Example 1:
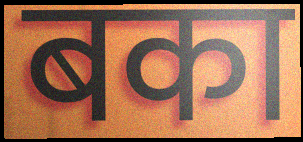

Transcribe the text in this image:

बका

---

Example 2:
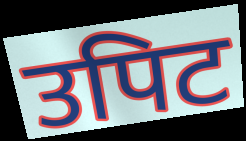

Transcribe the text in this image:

उपिट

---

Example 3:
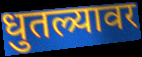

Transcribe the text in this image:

धुतल्यावर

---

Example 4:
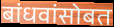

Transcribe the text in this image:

बांधवांसोबत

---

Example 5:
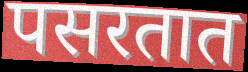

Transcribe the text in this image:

पसरतात